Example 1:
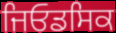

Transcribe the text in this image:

ਜਿਓਡਸਿਕ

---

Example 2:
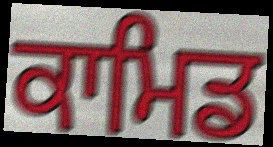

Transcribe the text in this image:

ਕਾਮਿਡ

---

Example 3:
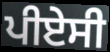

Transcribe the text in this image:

ਪੀਏਸੀ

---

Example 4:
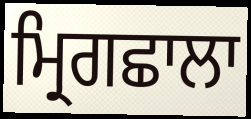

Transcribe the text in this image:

ਮ੍ਰਿਗਛਾਲਾ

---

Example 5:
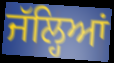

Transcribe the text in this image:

ਜੱਲ੍ਹਿਆਂ